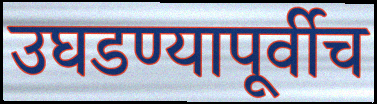
उघडण्यापूर्वीच